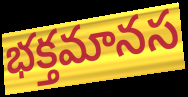
భక్తమానస